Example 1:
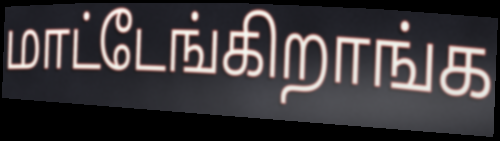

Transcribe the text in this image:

மாட்டேங்கிறாங்க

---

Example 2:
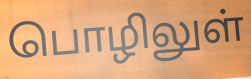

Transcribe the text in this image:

பொழிலுள்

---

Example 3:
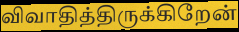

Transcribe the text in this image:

விவாதித்திருக்கிறேன்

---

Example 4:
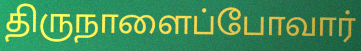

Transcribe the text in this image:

திருநாளைப்போவார்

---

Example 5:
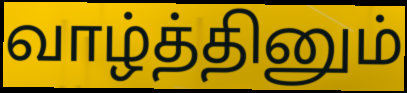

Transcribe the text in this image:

வாழ்த்தினும்